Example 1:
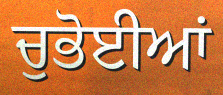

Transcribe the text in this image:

ਚੁਭੋਈਆਂ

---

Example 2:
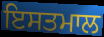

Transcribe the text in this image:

ਇਸਤਮਾਲ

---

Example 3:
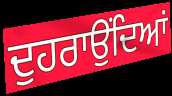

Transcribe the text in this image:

ਦੁਹਰਾਉਂਦਿਆਂ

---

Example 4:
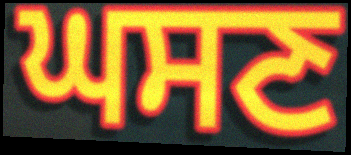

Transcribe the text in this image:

ਘਸਣ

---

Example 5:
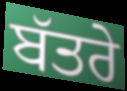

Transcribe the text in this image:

ਬੱਤਰੇ